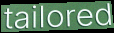
tailored